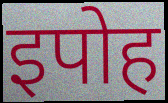
इपोह